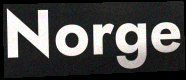
Norge